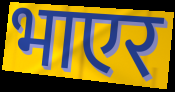
भाएर